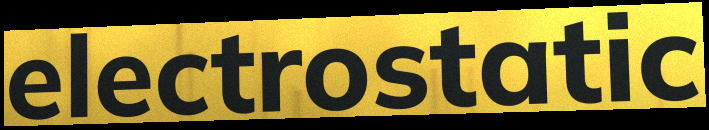
electrostatic